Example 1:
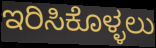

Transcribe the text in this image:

ಇರಿಸಿಕೊಳ್ಳಲು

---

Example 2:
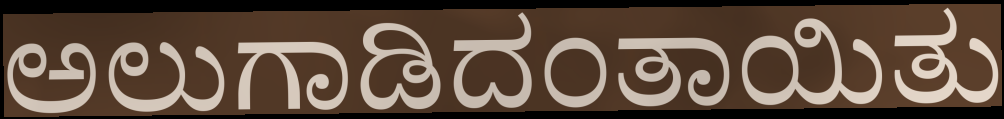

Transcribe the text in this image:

ಅಲುಗಾಡಿದಂತಾಯಿತು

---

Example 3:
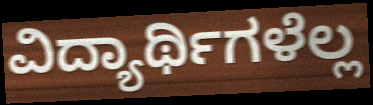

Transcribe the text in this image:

ವಿದ್ಯಾರ್ಥಿಗಳೆಲ್ಲ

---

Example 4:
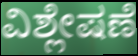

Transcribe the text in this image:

ವಿಶ್ಲೇಷಣೆ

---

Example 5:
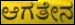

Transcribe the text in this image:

ಆಗತೇನ